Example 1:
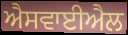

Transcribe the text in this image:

ਐਸਵਾਈਐਲ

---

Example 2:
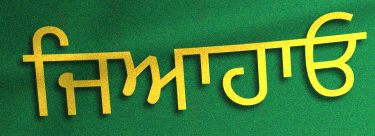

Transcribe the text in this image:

ਜਿਆਹਾਓ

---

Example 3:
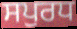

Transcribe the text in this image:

ਸਪੁਰਧ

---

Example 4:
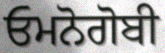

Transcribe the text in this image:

ਓਮਨੋਗੋਬੀ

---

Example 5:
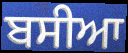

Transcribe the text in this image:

ਬਸੀਆ